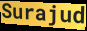
Surajud